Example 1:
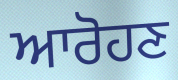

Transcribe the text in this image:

ਆਰੋਹਣ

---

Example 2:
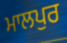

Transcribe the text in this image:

ਮਾਲਪੁਰ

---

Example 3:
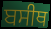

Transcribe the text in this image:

ਬਸੀਥ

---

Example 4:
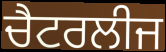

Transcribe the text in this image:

ਚੈਟਰਲੀਜ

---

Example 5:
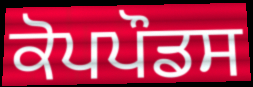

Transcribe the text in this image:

ਕੋਪਪੌਡਸ